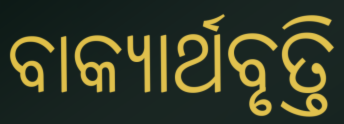
ବାକ୍ୟାର୍ଥବୃତ୍ତି